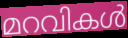
മറവികൾ